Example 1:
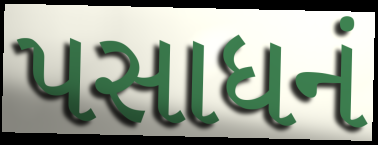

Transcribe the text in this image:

પસાધનં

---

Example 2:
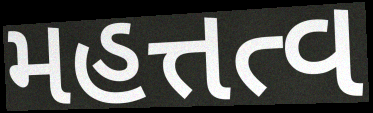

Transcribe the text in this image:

મહત્તત્વ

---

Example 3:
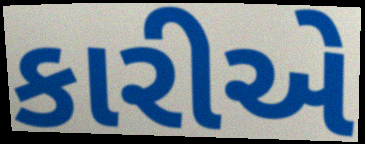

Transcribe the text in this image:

કારીએ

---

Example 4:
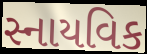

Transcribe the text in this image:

સ્નાયવિક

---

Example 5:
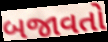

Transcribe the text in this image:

બજાવતો